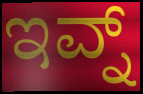
ಇವ್ನ್